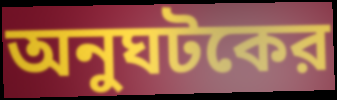
অনুঘটকের